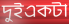
দুইএকটা